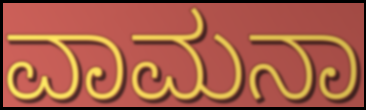
ವಾಮನಾ